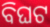
ବିଘଟ